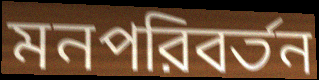
মনপরিবর্তন